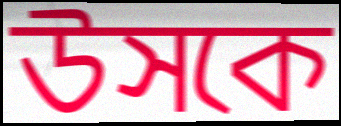
উসকে